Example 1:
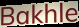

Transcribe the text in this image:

Bakhle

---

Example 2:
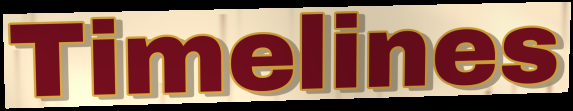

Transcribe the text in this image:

Timelines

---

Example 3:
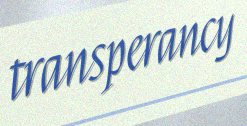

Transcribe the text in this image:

transperancy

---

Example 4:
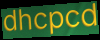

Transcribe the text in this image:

dhcpcd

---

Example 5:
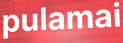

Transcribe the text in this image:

pulamai